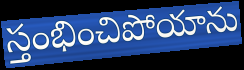
స్తంభించిపోయాను